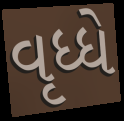
વૃધ્ધે